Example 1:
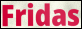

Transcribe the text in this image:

Fridas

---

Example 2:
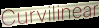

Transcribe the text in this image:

Curvilinear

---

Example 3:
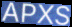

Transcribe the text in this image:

APXS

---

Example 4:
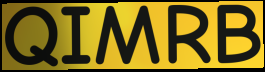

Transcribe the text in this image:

QIMRB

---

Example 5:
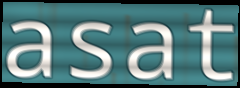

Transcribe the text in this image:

asat